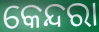
କେନ୍ଦରା